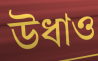
উধাও